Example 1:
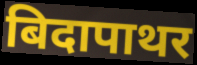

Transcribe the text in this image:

बिदापाथर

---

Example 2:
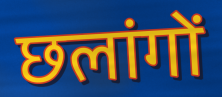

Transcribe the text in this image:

छलांगों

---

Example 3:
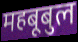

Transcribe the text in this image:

महबूबुल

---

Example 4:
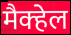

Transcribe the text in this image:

मैक्हेल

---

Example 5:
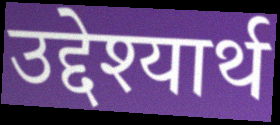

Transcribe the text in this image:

उद्देश्यार्थ